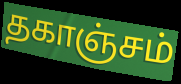
தகாஞ்சம்